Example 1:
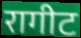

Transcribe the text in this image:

रागीट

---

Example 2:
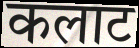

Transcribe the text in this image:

कलाट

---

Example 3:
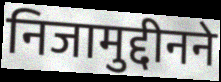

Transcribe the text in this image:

निजामुद्दीनने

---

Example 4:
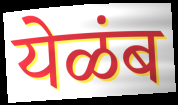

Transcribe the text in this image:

येळंब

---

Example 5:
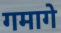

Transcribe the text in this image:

गमागे